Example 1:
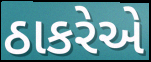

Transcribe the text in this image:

ઠાકરેએ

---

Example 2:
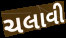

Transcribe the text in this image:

ચલાવી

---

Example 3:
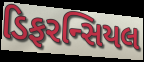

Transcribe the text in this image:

ડિફરન્સિયલ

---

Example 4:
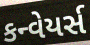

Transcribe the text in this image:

કન્વેયર્સ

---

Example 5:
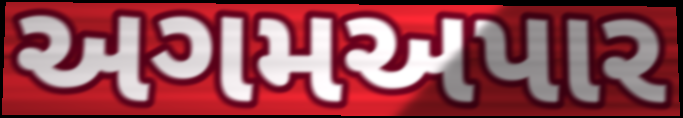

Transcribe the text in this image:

અગમઅપાર